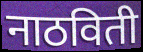
नाठविती